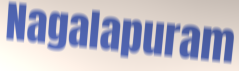
Nagalapuram